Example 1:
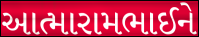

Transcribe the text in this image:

આત્મારામભાઈને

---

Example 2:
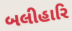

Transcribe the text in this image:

બલીહારિ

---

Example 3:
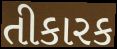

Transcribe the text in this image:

તીકારક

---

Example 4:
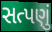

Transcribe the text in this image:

સત્પણું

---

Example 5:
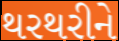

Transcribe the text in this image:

થરથરીને